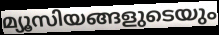
മ്യൂസിയങ്ങളുടെയും